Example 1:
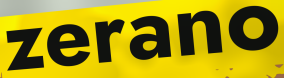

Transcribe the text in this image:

zerano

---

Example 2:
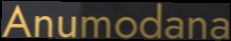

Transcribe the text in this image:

Anumodana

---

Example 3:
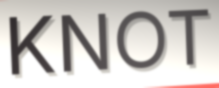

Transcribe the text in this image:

KNOT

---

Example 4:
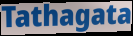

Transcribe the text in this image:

Tathagata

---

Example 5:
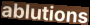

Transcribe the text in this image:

ablutions